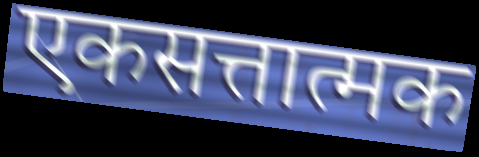
एकसत्तात्मक